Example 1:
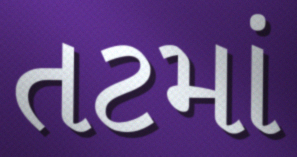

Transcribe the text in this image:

તટમાં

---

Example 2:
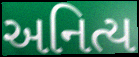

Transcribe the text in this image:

અનિત્ય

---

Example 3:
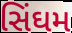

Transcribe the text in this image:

સિંઘમ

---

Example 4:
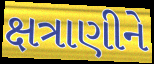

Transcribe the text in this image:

ક્ષત્રાણીને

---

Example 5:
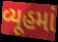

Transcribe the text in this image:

વ્યૂહમાં